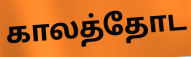
காலத்தோட